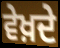
ਵੇਖ਼ਦੇ